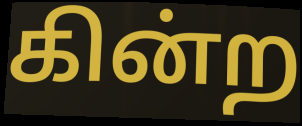
கின்ற